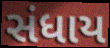
સંધાય